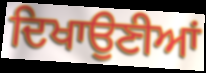
ਦਿਖਾਉਣੀਆਂ